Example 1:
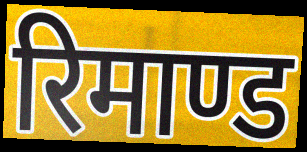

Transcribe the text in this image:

रिमाण्ड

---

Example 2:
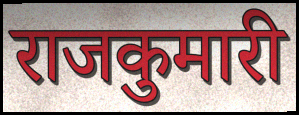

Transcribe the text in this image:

राजकुमारी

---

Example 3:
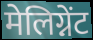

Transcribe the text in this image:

मेलिग्नेंट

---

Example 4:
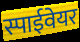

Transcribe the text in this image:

स्पाईवेयर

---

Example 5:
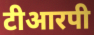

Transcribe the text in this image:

टीआरपी